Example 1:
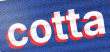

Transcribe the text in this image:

cotta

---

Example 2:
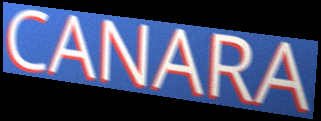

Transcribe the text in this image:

CANARA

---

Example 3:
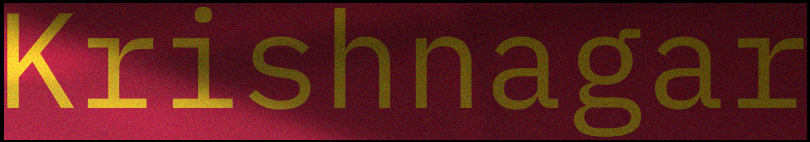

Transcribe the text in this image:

Krishnagar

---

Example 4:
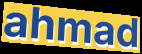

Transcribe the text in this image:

ahmad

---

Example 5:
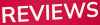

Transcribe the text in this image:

REVIEWS